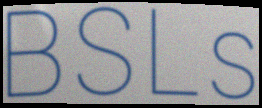
BSLs